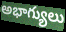
అభాగ్యులు